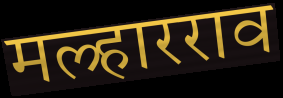
मल्हारराव